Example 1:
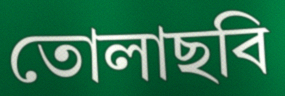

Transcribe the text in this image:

তোলাছবি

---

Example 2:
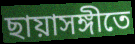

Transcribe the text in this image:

ছায়াসঙ্গীতে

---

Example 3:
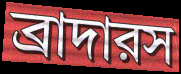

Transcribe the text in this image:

ব্রাদারস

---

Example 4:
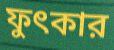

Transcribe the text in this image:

ফুৎকার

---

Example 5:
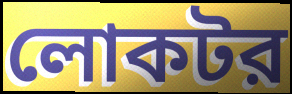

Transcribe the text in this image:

লোকটর